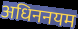
अधिननयम